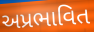
અપ્રભાવિત